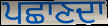
ਪਛਾਣਦਾ